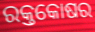
ରକ୍ତକୋଷର